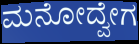
ಮನೋದ್ವೇಗ